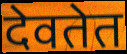
देवतेत